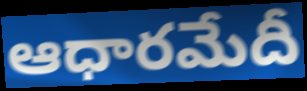
ఆధారమేదీ